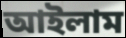
আইলাম